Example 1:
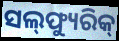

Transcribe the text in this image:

ସଲ୍‌ଫ୍ୟୁରିକ୍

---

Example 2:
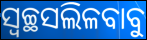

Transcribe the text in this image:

ସ୍ୱଚ୍ଛସଲିଳବାବୁ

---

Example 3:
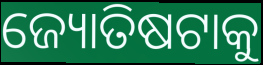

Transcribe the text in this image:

ଜ୍ୟୋତିଷଟାକୁ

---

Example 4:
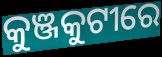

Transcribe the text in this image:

କୁଞ୍ଜକୁଟୀରେ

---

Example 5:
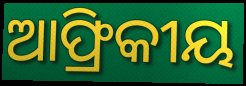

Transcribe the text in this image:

ଆଫ୍ରିକୀୟ